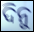
ଦିନୁ